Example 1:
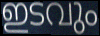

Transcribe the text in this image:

ഇടവും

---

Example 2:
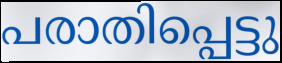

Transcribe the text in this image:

പരാതിപ്പെട്ടു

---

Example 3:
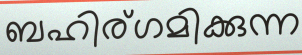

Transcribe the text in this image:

ബഹിര്ഗമിക്കുന്ന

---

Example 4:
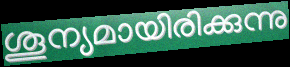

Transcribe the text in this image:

ശൂന്യമായിരിക്കുന്നു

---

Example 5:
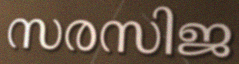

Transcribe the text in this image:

സരസിജ